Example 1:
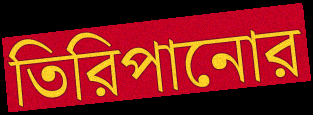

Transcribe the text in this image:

তিরিপানোর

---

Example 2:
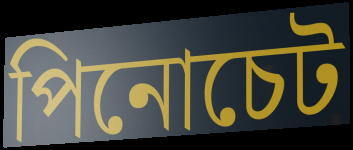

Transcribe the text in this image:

পিনোচেট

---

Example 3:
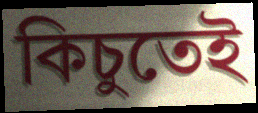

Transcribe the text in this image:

কিচুতেই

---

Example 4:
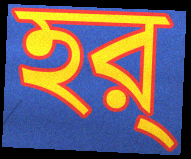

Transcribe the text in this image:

হর্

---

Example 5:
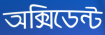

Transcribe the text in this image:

অক্সিডেন্ট